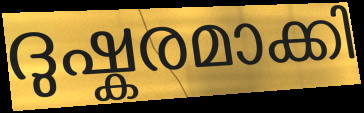
ദുഷ്കരമാക്കി